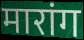
मारांग